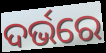
ଦର୍ଭରେ